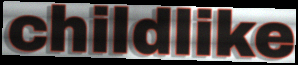
childlike